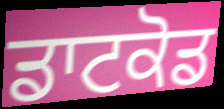
ਡਾਟਕੋਡ